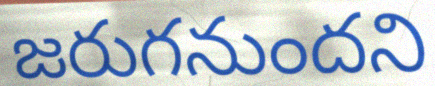
జరుగనుందని